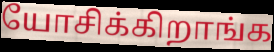
யோசிக்கிறாங்க